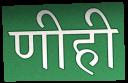
णीही